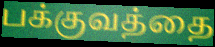
பக்குவத்தை